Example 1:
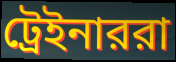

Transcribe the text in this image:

ট্রেইনাররা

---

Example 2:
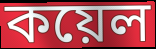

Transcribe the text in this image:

কয়েল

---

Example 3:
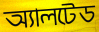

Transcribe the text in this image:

অ্যালটেড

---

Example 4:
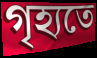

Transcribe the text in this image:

গৃহ্যতে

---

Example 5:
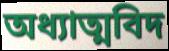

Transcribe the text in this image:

অধ্যাত্মবিদ